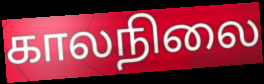
காலநிலை